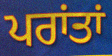
ਪਰਾਂਤਾਂ